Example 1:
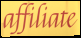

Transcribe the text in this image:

affiliate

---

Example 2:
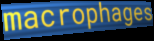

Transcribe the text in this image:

macrophages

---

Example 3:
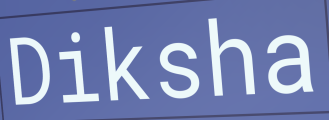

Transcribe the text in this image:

Diksha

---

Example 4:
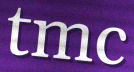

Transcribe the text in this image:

tmc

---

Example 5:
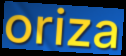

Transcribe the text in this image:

oriza